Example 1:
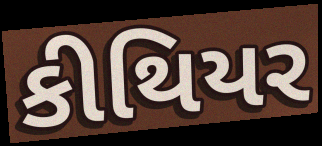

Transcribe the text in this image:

કીથિયર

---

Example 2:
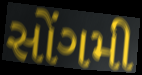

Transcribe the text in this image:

સોંગમી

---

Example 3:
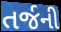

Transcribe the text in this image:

તર્જની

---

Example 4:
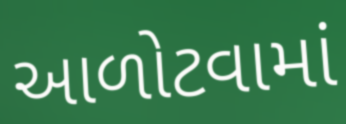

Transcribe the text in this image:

આળોટવામાં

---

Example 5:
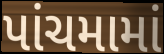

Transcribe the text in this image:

પાંચમામાં